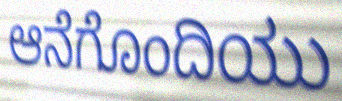
ಆನೆಗೊಂದಿಯು